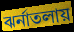
ঝর্নাতলায়